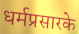
धर्मप्रसारके